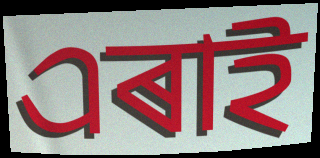
এৰাই